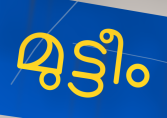
മുട്ടീം